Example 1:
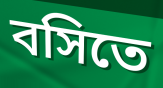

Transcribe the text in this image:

বসিতে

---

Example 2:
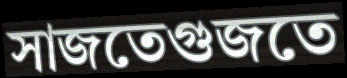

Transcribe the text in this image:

সাজতেগুজতে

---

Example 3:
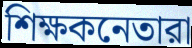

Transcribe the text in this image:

শিক্ষকনেতারা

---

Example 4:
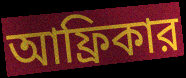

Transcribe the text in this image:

আফ্রিকার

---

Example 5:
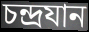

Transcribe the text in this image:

চন্দ্রযান